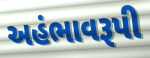
અહંભાવરૂપી